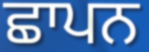
ਛਾਪਨ